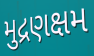
મુદ્રણક્ષમ